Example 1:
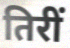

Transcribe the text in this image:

तिरीं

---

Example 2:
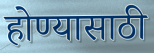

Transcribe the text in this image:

होण्यासाठी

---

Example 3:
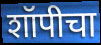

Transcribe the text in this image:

शॉपीचा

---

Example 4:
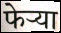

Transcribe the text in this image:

फेर्‍या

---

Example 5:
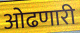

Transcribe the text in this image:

ओढणारी